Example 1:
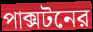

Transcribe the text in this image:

পাক্সটনের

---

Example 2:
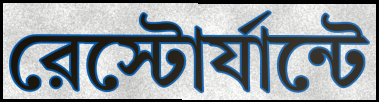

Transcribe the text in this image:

রেস্টোর্যান্টে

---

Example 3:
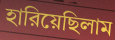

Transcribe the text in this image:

হারিয়েছিলাম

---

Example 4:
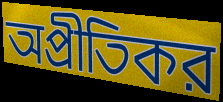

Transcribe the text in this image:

অপ্রীতিকর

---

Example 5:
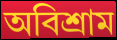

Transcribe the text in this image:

অবিশ্রাম